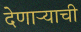
देणाऱ्याची